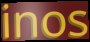
inos